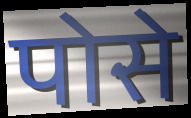
पोसे